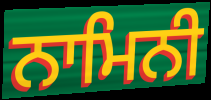
ਨਾਮਿਨੀ